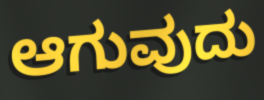
ಆಗುವುದು